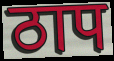
ठाप